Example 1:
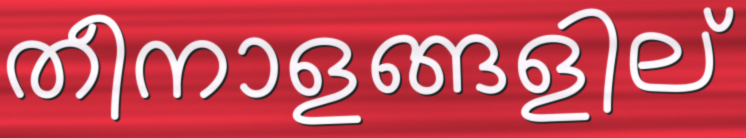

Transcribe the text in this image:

തീനാളങ്ങളില്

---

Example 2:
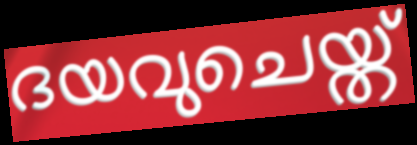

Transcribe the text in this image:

ദയവുചെയ്ത്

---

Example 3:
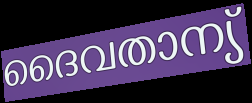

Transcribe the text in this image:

ദൈവതാന്യ്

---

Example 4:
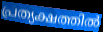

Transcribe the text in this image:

പ്രത്യക്ഷത്തിൽ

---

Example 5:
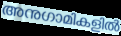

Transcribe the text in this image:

അനുഗാമികളിൽ